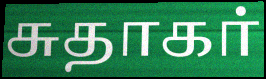
சுதாகர்